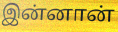
இன்னான்